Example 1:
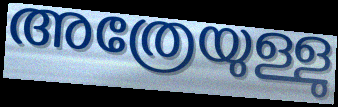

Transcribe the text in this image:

അത്രേയുള്ളു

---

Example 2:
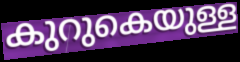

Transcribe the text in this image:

കുറുകെയുള്ള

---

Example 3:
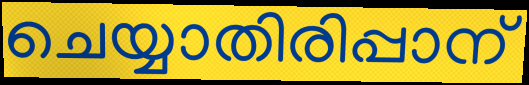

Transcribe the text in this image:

ചെയ്യാതിരിപ്പാന്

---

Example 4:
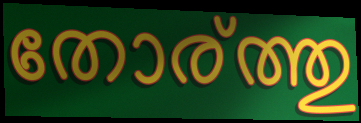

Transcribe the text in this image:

തോര്ത്തു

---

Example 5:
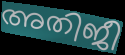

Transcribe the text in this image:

അതിജീ